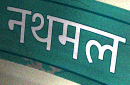
नथमल